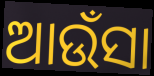
ଆଉଁସା